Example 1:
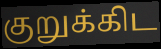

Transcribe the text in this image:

குறுக்கிட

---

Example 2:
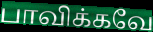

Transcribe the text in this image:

பாவிக்கவே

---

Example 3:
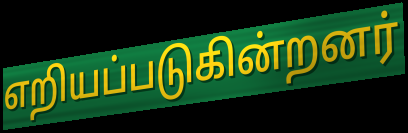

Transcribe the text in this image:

எறியப்படுகின்றனர்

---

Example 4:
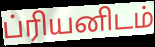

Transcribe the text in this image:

ப்ரியனிடம்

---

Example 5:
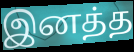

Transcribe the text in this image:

இனத்த